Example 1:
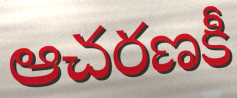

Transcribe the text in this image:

ఆచరణకీ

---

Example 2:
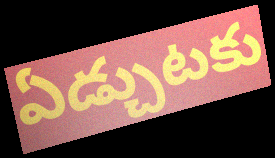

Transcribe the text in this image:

ఏడ్చుటకు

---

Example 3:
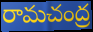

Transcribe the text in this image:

రామచంద్ర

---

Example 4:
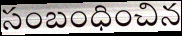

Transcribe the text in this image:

సంబంధించిన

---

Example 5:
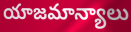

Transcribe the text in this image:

యాజమాన్యాలు